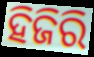
ହିଜିରି